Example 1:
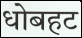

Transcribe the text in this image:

धोबहट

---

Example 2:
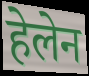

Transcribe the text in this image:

हेलेन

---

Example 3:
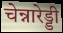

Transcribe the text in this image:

चेन्नारेड्डी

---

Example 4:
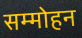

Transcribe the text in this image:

सम्मोहन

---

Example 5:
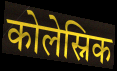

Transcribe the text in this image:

कोलेस्निक